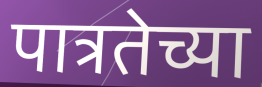
पात्रतेच्या